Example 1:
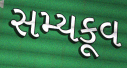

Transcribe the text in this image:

સમ્યકૂવ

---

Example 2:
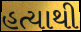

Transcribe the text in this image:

હત્યાથી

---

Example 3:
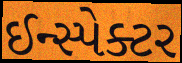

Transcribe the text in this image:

ઈન્સ્પેક્ટર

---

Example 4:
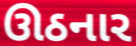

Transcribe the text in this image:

ઊઠનાર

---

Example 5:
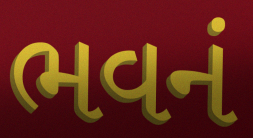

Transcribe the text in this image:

ભવનં